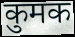
कुमक